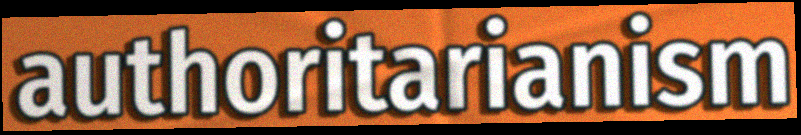
authoritarianism